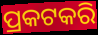
ପ୍ରକଟକରି